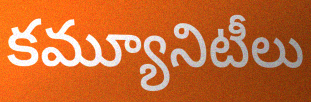
కమ్యూనిటీలు